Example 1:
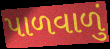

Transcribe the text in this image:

પાળવાળું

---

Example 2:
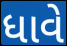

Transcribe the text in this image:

ધાવે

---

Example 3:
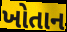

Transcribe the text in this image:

ખોતાન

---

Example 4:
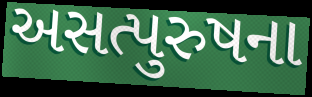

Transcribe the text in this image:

અસત્પુરુષના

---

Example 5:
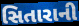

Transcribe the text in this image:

સિતારાની